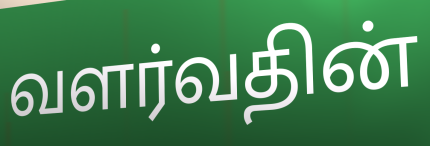
வளர்வதின்